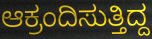
ಆಕ್ರಂದಿಸುತ್ತಿದ್ದ